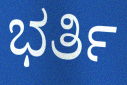
ಭರ್ತಿ